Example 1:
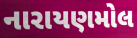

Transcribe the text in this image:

નારાયણમોલ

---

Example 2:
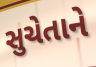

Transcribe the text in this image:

સુચેતાને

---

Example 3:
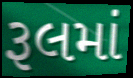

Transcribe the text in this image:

રૂલમાં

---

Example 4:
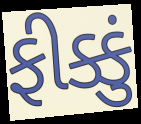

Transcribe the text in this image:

ફીક્કું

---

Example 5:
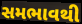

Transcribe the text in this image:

સમભાવથી